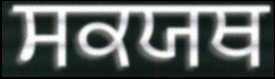
ਸਕਯਥ